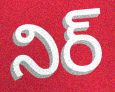
నిర్